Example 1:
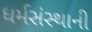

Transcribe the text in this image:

ધર્મસંસ્થાની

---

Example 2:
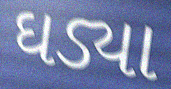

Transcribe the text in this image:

ઘડ્યા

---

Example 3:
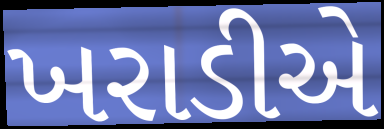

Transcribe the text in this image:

ખરાડીએ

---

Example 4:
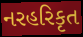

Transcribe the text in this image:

નરહરિકૃત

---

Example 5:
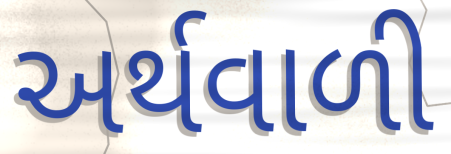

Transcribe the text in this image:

અર્થવાળી